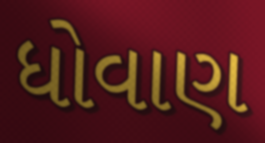
ધોવાણ